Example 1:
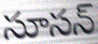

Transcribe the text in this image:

సూసన్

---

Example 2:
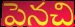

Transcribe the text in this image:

పెనచి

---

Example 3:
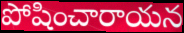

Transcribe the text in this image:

పోషించారాయన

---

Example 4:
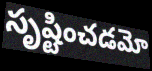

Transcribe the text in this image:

సృష్టించడమో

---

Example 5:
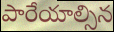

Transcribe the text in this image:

పారేయాల్సిన